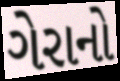
ગેરાનો